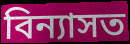
বিন্যাসত